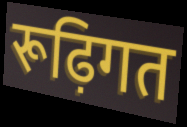
रूढ़िगत